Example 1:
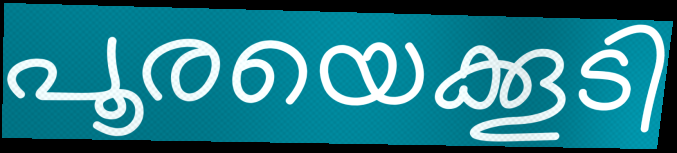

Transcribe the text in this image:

പൂരയെക്കൂടി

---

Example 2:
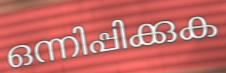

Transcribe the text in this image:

ഒന്നിപ്പിക്കുക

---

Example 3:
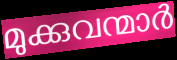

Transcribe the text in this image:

മുക്കുവന്മാർ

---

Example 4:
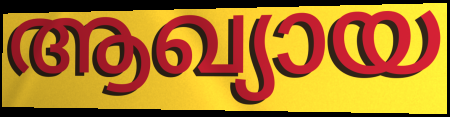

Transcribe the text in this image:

ആഖ്യായ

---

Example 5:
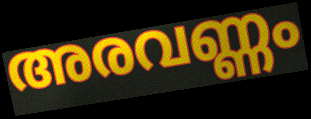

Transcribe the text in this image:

അരവണ്ണം